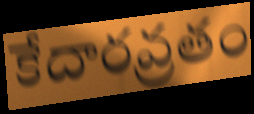
కేదారవ్రతం